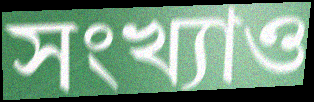
সংখ্যাও